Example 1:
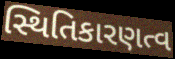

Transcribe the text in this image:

સ્થિતિકારણત્વ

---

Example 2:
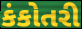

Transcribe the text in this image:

કંકોતરી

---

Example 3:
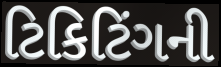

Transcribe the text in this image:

ટિકિટિંગની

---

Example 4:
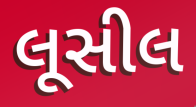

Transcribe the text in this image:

લૂસીલ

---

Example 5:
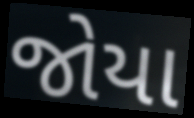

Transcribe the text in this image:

જોયા